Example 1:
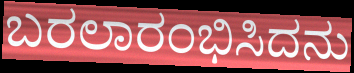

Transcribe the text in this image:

ಬರಲಾರಂಭಿಸಿದನು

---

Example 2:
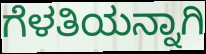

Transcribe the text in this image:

ಗೆಳತಿಯನ್ನಾಗಿ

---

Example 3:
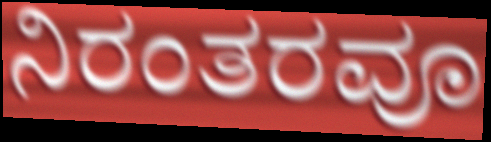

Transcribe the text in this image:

ನಿರಂತರವೂ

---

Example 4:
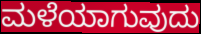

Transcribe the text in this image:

ಮಳೆಯಾಗುವುದು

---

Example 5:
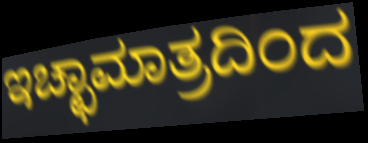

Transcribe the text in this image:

ಇಚ್ಛಾಮಾತ್ರದಿಂದ